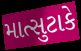
માત્સુટાકે